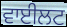
ਵਾਈਲਟ